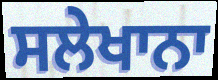
ਸਲੇਖਾਨਾ